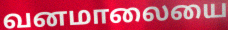
வனமாலையை